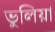
ভুলিয়া